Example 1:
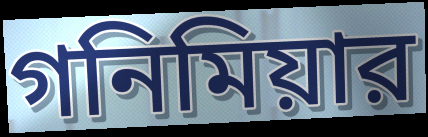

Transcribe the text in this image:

গনিমিয়ার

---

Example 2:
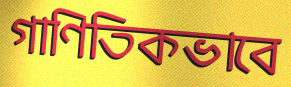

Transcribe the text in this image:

গাণিতিকভাবে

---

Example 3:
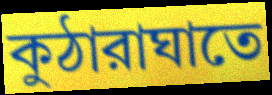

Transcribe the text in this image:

কুঠারাঘাতে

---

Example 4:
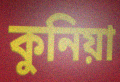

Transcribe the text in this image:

কুনিয়া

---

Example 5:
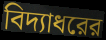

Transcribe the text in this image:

বিদ্যাধরের